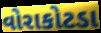
વોરાકોટડા